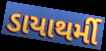
ડાયાથર્મી